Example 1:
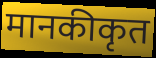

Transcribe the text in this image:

मानकीकृत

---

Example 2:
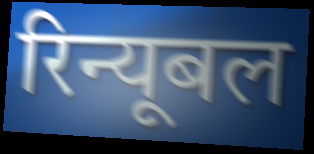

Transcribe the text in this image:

रिन्यूबल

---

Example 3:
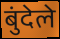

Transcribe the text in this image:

बुंदेले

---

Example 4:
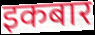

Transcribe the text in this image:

इकबार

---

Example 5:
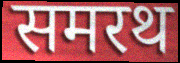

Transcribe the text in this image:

समरथ